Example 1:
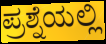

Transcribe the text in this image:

ಪ್ರಶ್ನೆಯಲ್ಲಿ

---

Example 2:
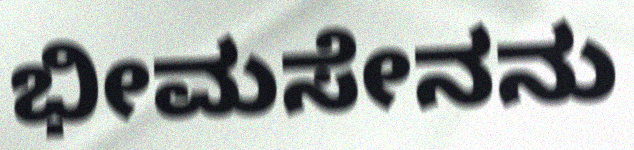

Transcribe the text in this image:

ಭೀಮಸೇನನು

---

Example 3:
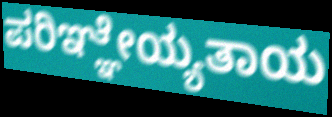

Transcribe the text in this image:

ಪರಿಞ್ಞೇಯ್ಯತಾಯ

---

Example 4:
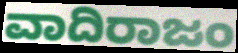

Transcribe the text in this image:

ವಾದಿರಾಜಂ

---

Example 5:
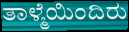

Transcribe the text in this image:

ತಾಳ್ಮೆಯಿಂದಿರು